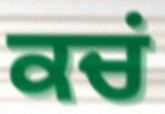
ਕਚਂ